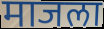
माजला